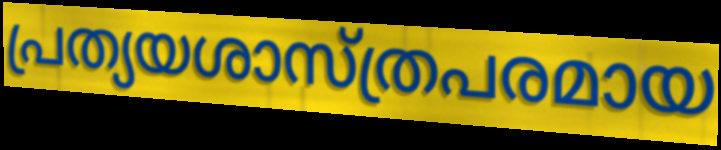
പ്രത്യയശാസ്ത്രപരമായ